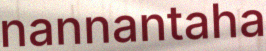
nannantaha